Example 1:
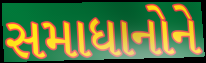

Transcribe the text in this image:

સમાધાનોને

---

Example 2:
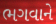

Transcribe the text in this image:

ભગવાને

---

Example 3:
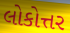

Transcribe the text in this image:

લોકોત્તર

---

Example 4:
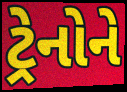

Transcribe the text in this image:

ટ્રેનોને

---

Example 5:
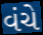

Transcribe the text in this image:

વંચે